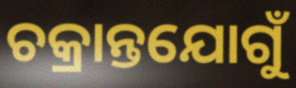
ଚକ୍ରାନ୍ତଯୋଗୁଁ